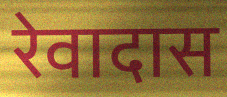
रेवादास